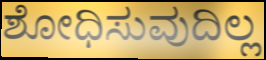
ಶೋಧಿಸುವುದಿಲ್ಲ